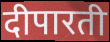
दीपारती